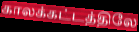
காலக்கட்டத்திலே